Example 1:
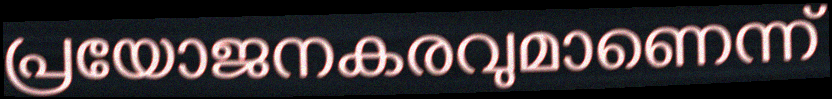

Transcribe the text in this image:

പ്രയോജനകരവുമാണെന്ന്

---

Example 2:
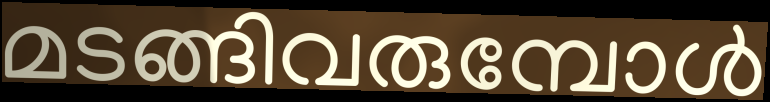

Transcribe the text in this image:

മടങ്ങിവരുമ്പോൾ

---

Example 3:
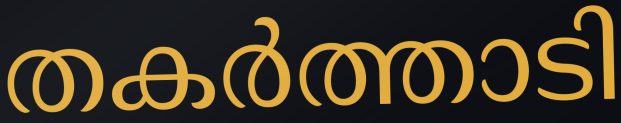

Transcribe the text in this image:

തകർത്താടി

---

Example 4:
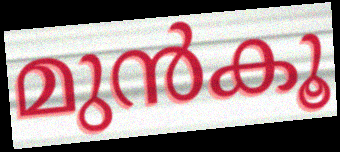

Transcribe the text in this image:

മുൻകൂ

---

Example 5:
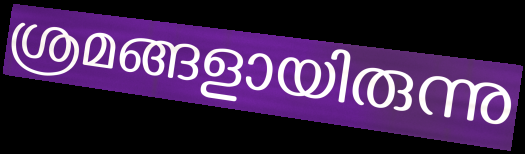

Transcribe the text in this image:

ശ്രമങ്ങളായിരുന്നു